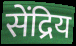
सेंद्रिय